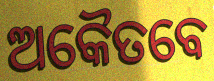
ଅକୈତବେ